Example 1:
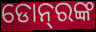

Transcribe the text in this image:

ଡୋନ୍‌ରଙ୍କ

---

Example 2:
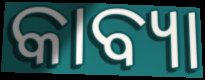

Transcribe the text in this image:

କାବ୍ୟା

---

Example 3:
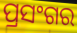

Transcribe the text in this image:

ପ୍ରସଂଗର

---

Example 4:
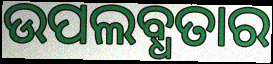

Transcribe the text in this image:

ଉପଲବ୍ଧତାର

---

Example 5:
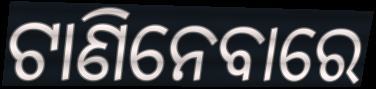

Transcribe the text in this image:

ଟାଣିନେବାରେ